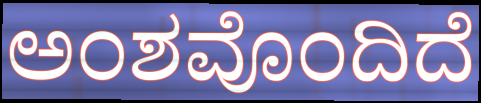
ಅಂಶವೊಂದಿದೆ